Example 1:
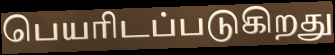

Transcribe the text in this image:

பெயரிடப்படுகிறது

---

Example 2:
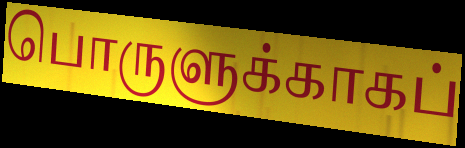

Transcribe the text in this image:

பொருளுக்காகப்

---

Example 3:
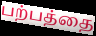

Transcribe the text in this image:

பற்பத்தை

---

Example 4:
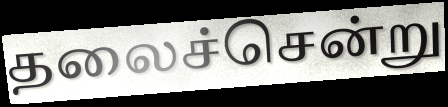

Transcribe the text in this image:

தலைச்சென்று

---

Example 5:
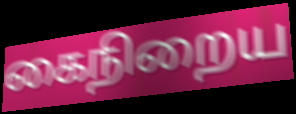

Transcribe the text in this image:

கைநிறைய